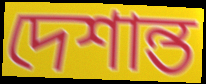
দেশান্ত